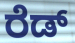
ರೆಡ್